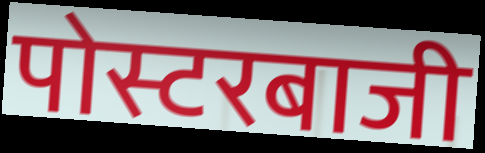
पोस्टरबाजी